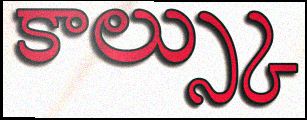
కాల్స్కు